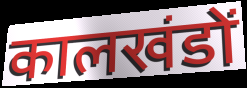
कालखंडों